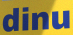
dinu